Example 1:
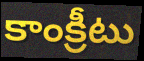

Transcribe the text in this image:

కాంక్రీటు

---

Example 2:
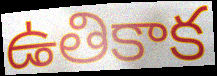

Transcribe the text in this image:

ఉతికాక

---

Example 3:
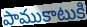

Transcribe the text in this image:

పాముకాటుకి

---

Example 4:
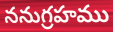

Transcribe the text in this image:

ననుగ్రహము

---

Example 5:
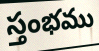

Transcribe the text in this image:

స్తంభము